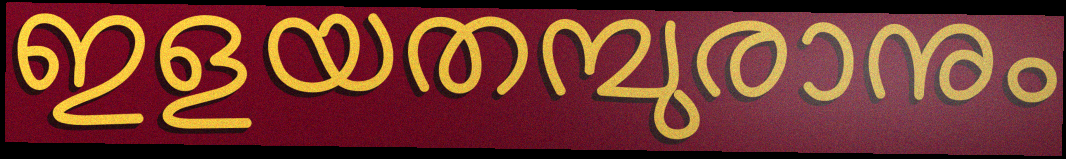
ഇളയതമ്പുരാനും